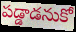
పడ్డాడనుకో